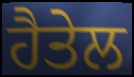
ਹੈਤੇਲ